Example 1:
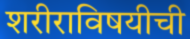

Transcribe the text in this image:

शरीराविषयीची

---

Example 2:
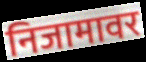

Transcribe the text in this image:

निजामावर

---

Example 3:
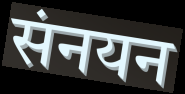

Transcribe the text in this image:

संनयन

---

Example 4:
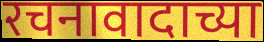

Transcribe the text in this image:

रचनावादाच्या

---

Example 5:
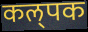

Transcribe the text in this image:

कल्पक